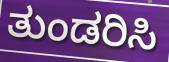
ತುಂಡರಿಸಿ